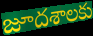
జూదశాలకు